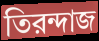
তিরন্দাজ